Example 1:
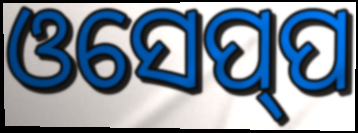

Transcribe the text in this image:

ଓସେପ୍‍ପ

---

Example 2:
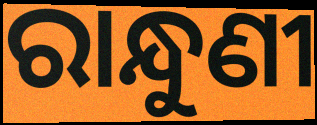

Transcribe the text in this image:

ରାନ୍ଧୁଣୀ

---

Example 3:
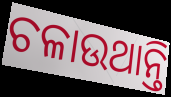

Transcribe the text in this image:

ଚଳାଉଥାନ୍ତି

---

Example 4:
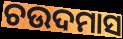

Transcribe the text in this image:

ଚଉଦମାସ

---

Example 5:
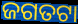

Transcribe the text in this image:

ଜଗତଟା